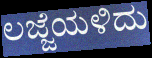
ಲಜ್ಜೆಯಳಿದು